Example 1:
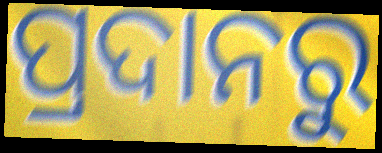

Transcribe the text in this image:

ପ୍ରଦାନରୁ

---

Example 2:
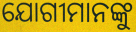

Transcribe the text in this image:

ଯୋଗୀମାନଙ୍କୁ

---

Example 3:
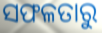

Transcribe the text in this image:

ସଫଳତାରୁ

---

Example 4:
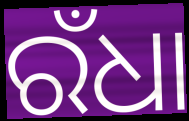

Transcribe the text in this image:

ରଁଧା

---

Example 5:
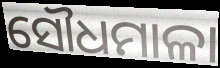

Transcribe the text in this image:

ସୌଧମାଳା